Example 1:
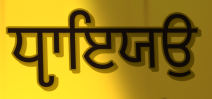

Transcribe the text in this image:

ਧੵਾਇਯਉ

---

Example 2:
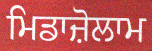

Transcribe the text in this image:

ਮਿਡਾਜ਼ੋਲਾਮ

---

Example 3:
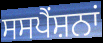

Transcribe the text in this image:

ਸਸਪੈਂਸ਼ਨਾਂ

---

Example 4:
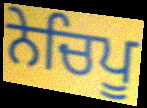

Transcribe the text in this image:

ਨੇਚਿਪੂ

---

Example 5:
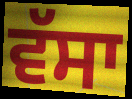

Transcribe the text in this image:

ਵੱਸਾ